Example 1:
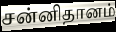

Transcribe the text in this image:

சன்னிதானம்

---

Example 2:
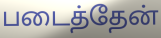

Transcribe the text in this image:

படைத்தேன்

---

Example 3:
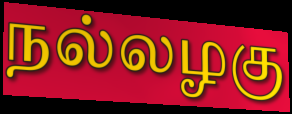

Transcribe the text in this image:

நல்லழகு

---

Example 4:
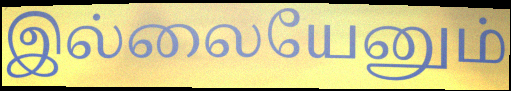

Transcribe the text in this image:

இல்லையேனும்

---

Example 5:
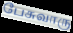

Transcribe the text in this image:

பேசுவாரு